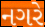
નગરે